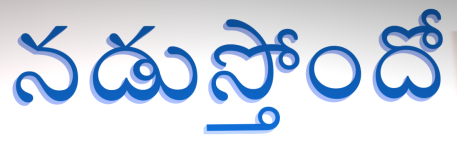
నడుస్తోందో